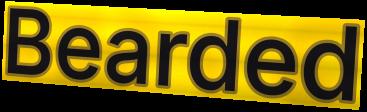
Bearded